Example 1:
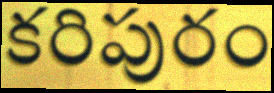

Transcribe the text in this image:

కరిపురం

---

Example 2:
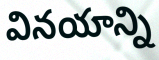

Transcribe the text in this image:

వినయాన్ని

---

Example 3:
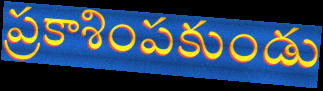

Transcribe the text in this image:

ప్రకాశింపకుండు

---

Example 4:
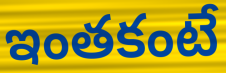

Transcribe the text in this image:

ఇంతకంటే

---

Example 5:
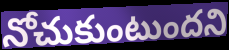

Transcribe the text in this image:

నోచుకుంటుందని